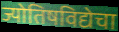
ज्योतिषविद्येचा